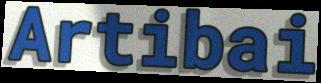
Artibai